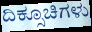
ದಿಕ್ಸೂಚಿಗಳು